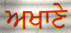
ਅਖਾਣੇ